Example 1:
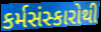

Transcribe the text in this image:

કર્મસંસ્કારોથી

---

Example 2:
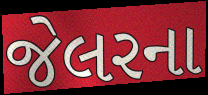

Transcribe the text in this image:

જેલરના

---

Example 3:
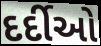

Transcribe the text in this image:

દર્દીઓ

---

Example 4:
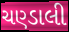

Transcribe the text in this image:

ચણ્ડાલી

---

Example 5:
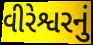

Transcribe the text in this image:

વીરેશ્વરનું